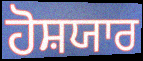
ਹੋਸ਼ਯਾਰ